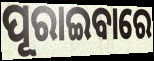
ପୂରାଇବାରେ